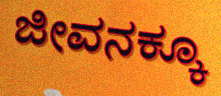
ಜೀವನಕ್ಕೂ